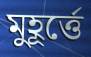
মুহূর্ত্তে